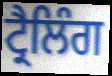
ਟ੍ਰੈਲਿੰਗ